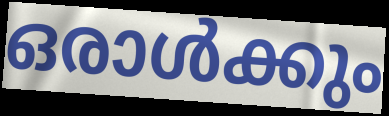
ഒരാൾക്കും